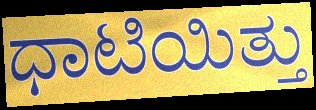
ಧಾಟಿಯಿತ್ತು